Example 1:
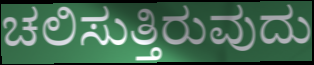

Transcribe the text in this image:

ಚಲಿಸುತ್ತಿರುವುದು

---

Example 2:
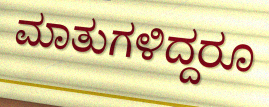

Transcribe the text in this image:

ಮಾತುಗಳಿದ್ದರೂ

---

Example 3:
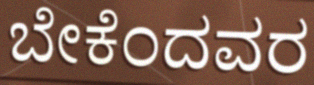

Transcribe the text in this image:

ಬೇಕೆಂದವರ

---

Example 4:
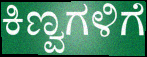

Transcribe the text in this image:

ಕಿಣ್ವಗಳಿಗೆ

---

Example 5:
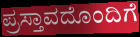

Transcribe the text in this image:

ಪ್ರಸ್ತಾವದೊಂದಿಗೆ